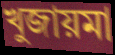
খুজায়মা